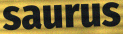
saurus